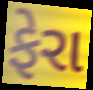
ફેરા